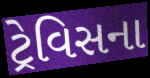
ટ્રેવિસના